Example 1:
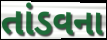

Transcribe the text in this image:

તાંડવના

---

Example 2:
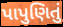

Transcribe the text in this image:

પાપુણિતું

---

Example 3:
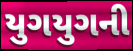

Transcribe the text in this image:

યુગયુગની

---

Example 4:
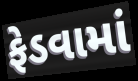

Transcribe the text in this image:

ફેડવામાં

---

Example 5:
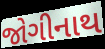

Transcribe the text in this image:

જોગીનાથ